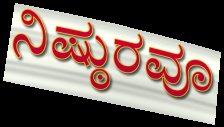
ನಿಷ್ಠುರವೂ